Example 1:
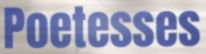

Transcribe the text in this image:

Poetesses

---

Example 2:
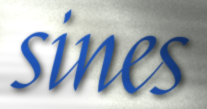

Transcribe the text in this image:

sines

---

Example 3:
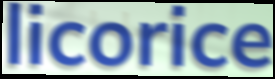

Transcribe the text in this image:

licorice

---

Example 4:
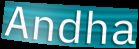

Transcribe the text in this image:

Andha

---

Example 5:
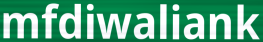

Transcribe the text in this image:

mfdiwaliank